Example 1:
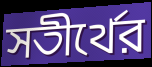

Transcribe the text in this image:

সতীর্থের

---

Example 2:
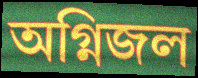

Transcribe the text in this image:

অগ্নিজল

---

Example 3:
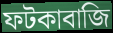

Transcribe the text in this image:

ফটকাবাজি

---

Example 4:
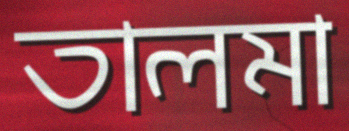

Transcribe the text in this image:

তালমা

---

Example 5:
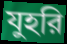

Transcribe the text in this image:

যুহরি